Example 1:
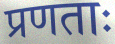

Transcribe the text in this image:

प्रणताः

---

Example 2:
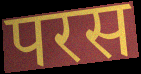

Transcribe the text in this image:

परस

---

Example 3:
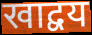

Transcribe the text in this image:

खाद्वय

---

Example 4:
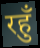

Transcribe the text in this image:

रहुँ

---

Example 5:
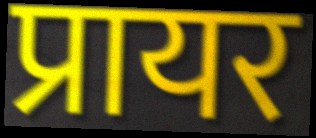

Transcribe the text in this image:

प्रायर